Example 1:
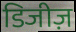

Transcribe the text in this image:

डिजीज़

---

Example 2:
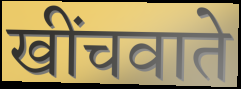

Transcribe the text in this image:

खींचवाते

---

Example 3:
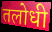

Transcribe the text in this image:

तलोधी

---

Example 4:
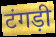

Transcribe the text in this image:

टंगड़ी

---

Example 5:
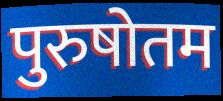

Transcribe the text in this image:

पुरुषोतम